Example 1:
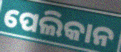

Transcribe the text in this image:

ପେଲିକାନ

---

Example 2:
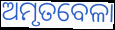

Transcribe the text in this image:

ଅମୃତବେଳା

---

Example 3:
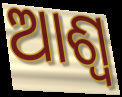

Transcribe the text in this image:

ଆଶ୍ୱ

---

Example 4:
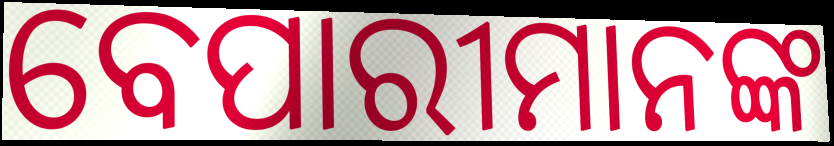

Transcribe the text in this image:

ବେପାରୀମାନଙ୍କ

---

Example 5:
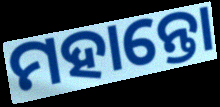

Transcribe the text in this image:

ମହାନ୍ତୋ